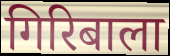
गिरिबाला